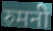
रुमनी